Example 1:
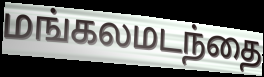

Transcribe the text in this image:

மங்கலமடந்தை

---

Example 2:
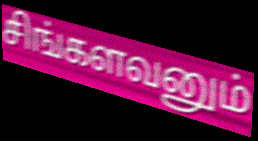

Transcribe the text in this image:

சிங்களவனும்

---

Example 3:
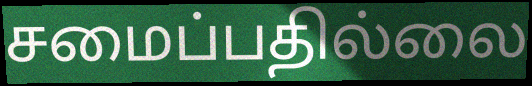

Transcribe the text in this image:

சமைப்பதில்லை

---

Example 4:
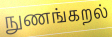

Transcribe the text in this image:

நுணங்கறல்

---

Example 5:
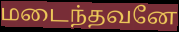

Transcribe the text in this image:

மடைந்தவனே